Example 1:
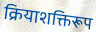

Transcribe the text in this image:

क्रियाशक्तिरूप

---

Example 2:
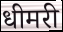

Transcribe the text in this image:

धीमरी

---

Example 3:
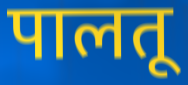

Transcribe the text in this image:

पालतू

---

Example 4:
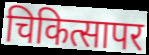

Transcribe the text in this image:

चिकित्सापर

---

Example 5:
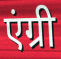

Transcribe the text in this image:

एंग्री